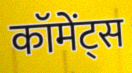
कॉमेंट्स